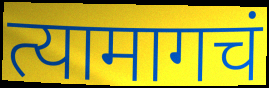
त्यामागचं